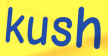
kush